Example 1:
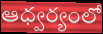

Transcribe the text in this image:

ఆధ్వర్యంలో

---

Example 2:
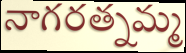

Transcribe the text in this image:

నాగరత్నమ్మ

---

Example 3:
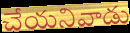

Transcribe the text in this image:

చేయనివాడు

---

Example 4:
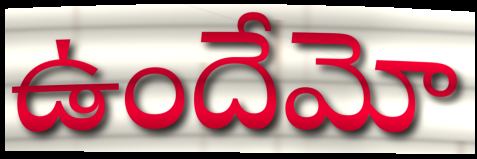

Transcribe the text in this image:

ఉందేమో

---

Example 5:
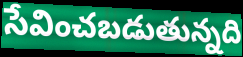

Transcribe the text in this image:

సేవించబడుతున్నది